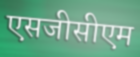
एसजीसीएम